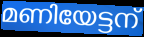
മണിയേട്ടന്